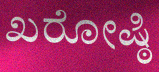
ಖರೋಷ್ಠಿ